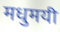
मधुमयी